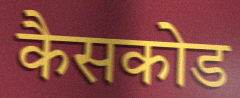
कैसकोड